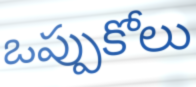
ఒప్పుకోలు